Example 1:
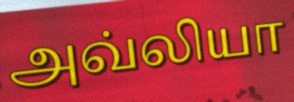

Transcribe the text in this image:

அவ்லியா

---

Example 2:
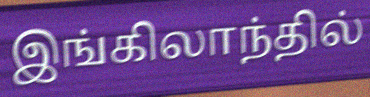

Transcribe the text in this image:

இங்கிலாந்தில்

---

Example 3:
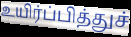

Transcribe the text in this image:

உயிர்ப்பித்துச்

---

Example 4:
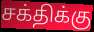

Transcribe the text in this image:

சக்திக்கு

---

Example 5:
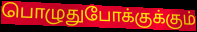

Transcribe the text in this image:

பொழுதுபோக்குக்கும்